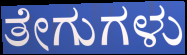
ತೇಗುಗಳು